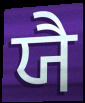
ਯੈ